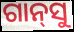
ଗାନ୍‍ସୁ